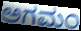
ಅಗಮಂ